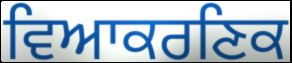
ਵਿਆਕਰਣਿਕ